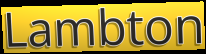
Lambton